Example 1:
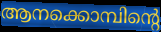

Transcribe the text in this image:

ആനക്കൊമ്പിന്റെ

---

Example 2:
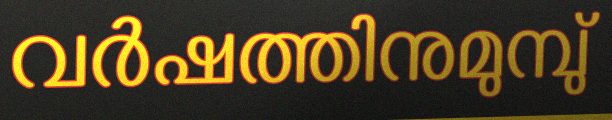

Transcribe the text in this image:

വർഷത്തിനുമുമ്പു്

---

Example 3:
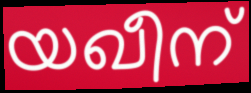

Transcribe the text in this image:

യഖീന്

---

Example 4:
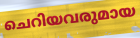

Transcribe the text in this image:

ചെറിയവരുമായ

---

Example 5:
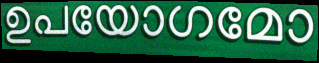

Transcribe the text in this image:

ഉപയോഗമോ